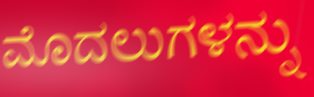
ಮೊದಲುಗಳನ್ನು